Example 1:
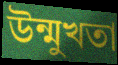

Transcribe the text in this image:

উন্মুখতা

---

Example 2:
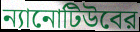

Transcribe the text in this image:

ন্যানোটিউবের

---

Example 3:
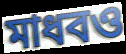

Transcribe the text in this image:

মাধবও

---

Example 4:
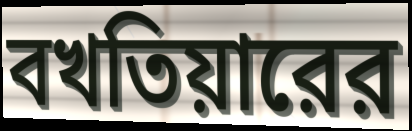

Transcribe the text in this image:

বখতিয়ারের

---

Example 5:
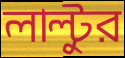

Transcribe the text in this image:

লাল্টুর